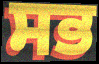
ਸਭ